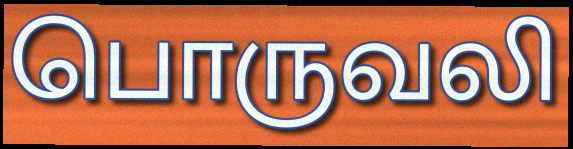
பொருவலி